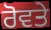
ਰੋਵਤੇ